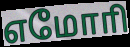
எமோரி